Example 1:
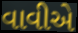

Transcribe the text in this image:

વાવીએ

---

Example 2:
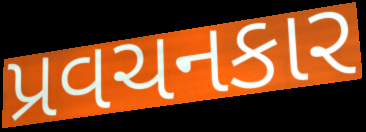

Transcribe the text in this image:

પ્રવચનકાર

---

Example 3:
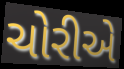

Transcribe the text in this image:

ચોરીએ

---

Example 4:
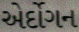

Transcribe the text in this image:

એર્દોગન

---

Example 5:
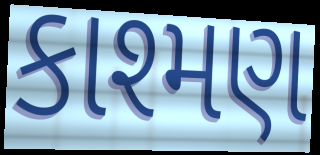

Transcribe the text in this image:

કાશ્મણ